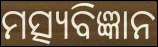
ମତ୍ସ୍ୟବିଜ୍ଞାନ